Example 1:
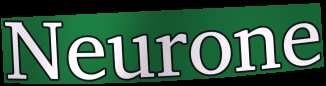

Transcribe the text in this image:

Neurone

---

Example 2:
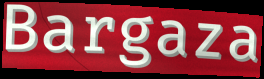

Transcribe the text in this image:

Bargaza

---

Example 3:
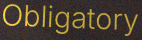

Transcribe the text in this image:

Obligatory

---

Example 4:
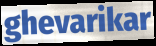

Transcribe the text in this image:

ghevarikar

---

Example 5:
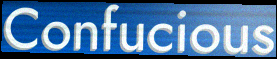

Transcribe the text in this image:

Confucious